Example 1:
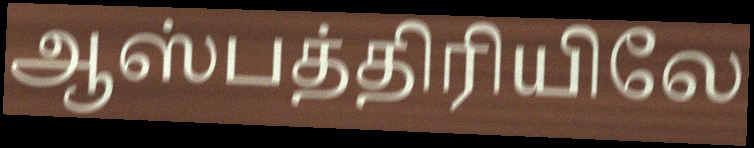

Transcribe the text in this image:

ஆஸ்பத்திரியிலே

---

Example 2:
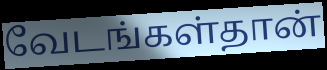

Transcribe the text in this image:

வேடங்கள்தான்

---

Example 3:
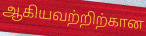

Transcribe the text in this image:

ஆகியவற்றிற்கான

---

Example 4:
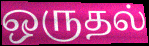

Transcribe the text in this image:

ஒருதல்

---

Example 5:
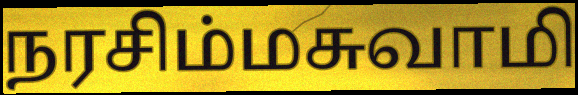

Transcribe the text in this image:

நரசிம்மசுவாமி